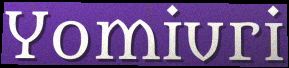
Yomiuri